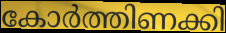
കോർത്തിണക്കി